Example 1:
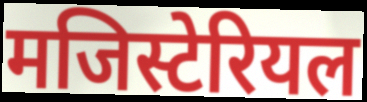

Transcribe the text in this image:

मजिस्टेरियल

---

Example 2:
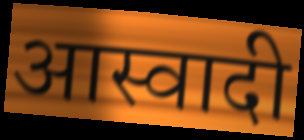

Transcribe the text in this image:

आस्वादी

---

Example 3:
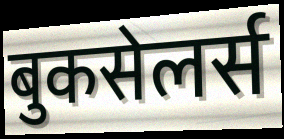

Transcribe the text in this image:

बुकसेलर्स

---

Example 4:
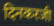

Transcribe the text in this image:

दिनकरजी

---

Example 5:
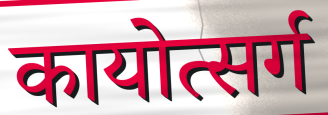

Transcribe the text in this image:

कायोत्सर्ग